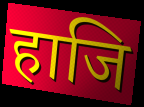
हाजि